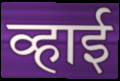
व्हाई